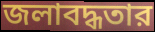
জলাবদ্ধতার